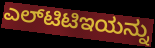
ಎಲ್‌ಟಿಟಿಇಯನ್ನು